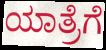
ಯಾತ್ರೆಗೆ